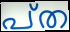
പ്‌ത